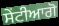
ਸੇਂਟੀਆਗੋ